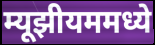
म्यूझीयममध्ये